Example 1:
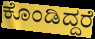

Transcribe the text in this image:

ಕೊಂಡಿದ್ದರೆ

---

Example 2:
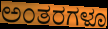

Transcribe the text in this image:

ಅಂತರಗಳೂ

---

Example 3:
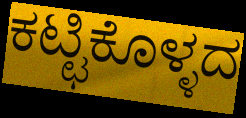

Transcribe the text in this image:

ಕಟ್ಟಿಕೊಳ್ಳದ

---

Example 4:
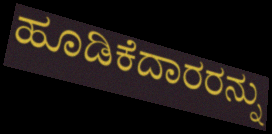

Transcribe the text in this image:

ಹೂಡಿಕೆದಾರರನ್ನು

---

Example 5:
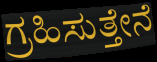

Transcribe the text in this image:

ಗ್ರಹಿಸುತ್ತೇನೆ